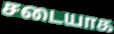
சடையாக